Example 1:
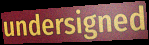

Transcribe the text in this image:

undersigned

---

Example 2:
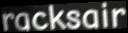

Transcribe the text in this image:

racksair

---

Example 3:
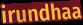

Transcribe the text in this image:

irundhaa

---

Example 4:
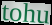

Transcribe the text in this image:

tohu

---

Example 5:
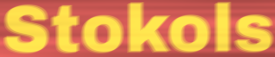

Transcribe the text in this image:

Stokols